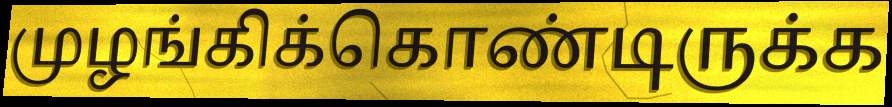
முழங்கிக்கொண்டிருக்க